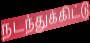
நடந்துக்கிட்டு